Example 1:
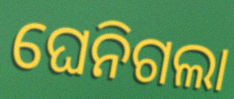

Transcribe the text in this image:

ଘେନିଗଲା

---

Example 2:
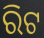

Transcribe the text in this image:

ରିଟ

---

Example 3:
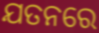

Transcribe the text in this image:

ଯତନରେ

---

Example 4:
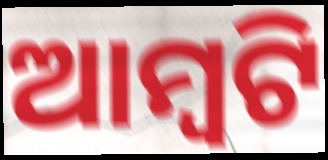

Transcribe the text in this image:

ଆମ୍ୱଟି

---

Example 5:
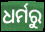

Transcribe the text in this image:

ଧର୍ମରୁ